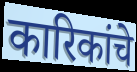
कारिकांचे